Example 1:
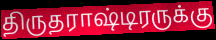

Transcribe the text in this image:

திருதராஷ்டிரருக்கு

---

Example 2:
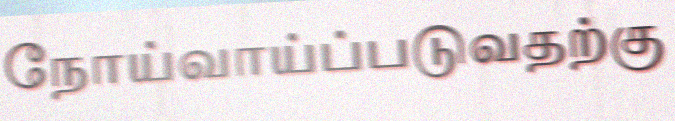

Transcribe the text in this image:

நோய்வாய்ப்படுவதற்கு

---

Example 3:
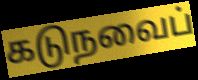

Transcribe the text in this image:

கடுநவைப்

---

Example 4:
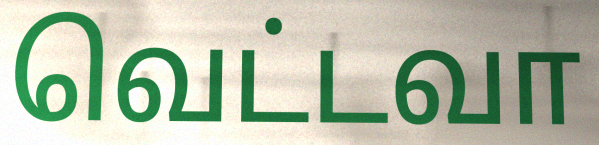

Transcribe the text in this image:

வெட்டவா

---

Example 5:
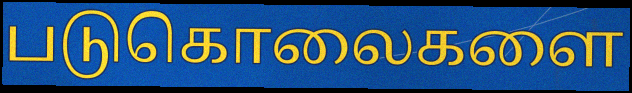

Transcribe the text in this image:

படுகொலைகளை